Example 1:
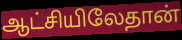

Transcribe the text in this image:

ஆட்சியிலேதான்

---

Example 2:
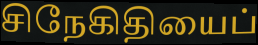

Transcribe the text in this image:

சிநேகிதியைப்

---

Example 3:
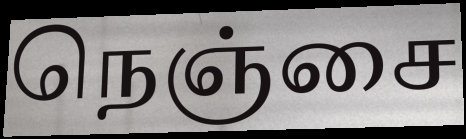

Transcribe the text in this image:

நெஞ்சை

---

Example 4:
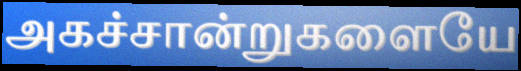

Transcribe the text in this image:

அகச்சான்றுகளையே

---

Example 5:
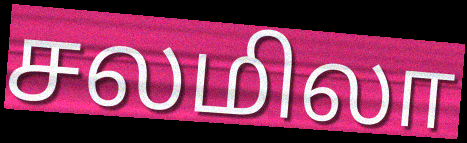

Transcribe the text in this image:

சலமிலா